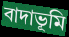
বাদাভূমি